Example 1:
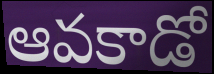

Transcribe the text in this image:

ఆవకాడో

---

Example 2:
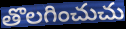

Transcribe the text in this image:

తొలగించుచు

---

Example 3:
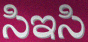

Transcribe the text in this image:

సిఇసి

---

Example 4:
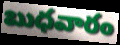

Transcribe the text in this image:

బుధవారం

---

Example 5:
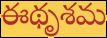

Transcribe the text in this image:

ఈథృశమ